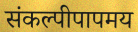
संकल्पीपापमय